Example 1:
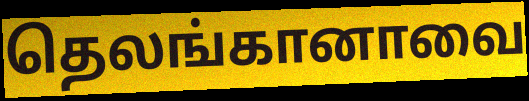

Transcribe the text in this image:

தெலங்கானாவை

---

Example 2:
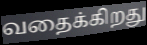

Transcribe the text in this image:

வதைக்கிறது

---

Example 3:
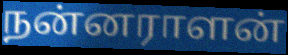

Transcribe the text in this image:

நன்னராளன்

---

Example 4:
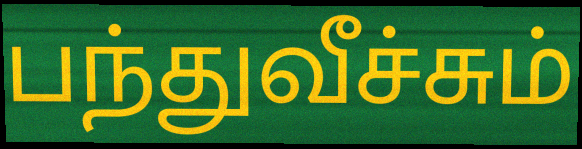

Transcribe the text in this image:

பந்துவீச்சும்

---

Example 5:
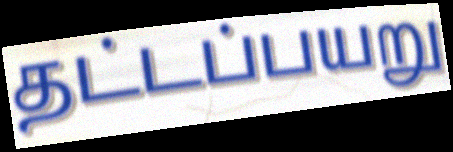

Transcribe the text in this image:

தட்டப்பயறு